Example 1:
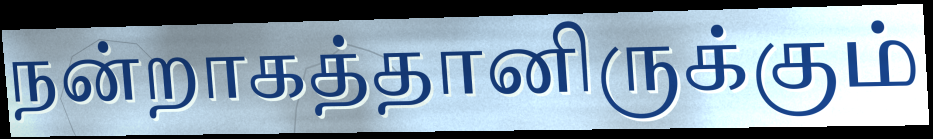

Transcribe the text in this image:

நன்றாகத்தானிருக்கும்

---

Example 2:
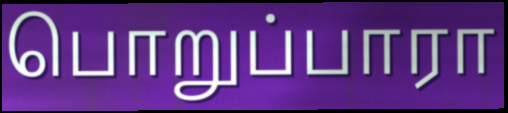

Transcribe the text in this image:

பொறுப்பாரா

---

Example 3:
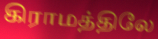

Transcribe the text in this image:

கிராமத்திலே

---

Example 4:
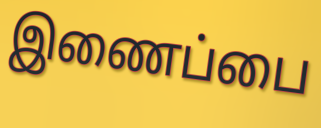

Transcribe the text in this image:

இணைப்பை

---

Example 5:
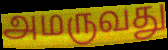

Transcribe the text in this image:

அமருவது